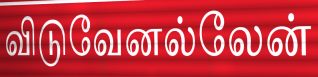
விடுவேனல்லேன்